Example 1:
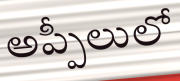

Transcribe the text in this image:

అప్పీలులో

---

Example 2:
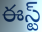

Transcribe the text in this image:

ఈస్ట్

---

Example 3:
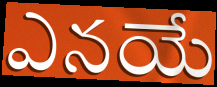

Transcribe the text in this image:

ఎనయే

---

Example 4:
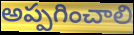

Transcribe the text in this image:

అప్పగించాలి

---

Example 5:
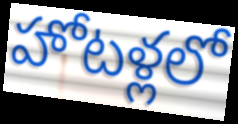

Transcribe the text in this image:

హోటళ్లలో